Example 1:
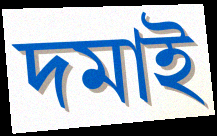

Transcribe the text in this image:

দমাই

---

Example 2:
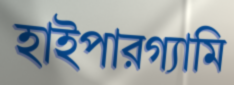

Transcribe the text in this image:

হাইপারগ্যামি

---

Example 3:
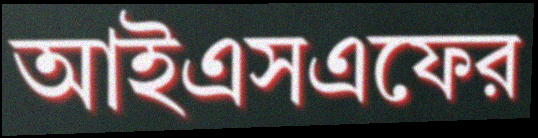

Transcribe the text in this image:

আইএসএফের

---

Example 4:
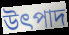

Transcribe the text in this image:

উৎপাদ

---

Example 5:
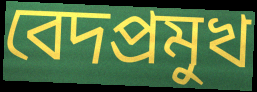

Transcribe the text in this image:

বেদপ্রমুখ